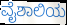
ವೈಶಾಲಿಯ